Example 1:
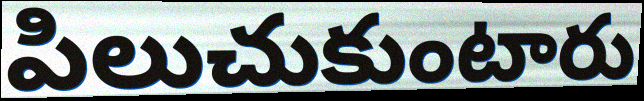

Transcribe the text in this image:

పిలుచుకుంటారు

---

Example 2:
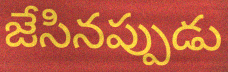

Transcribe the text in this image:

జేసినప్పుడు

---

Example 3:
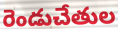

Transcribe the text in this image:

రెండుచేతుల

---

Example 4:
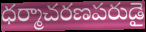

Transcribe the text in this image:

ధర్మాచరణపరుడై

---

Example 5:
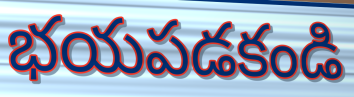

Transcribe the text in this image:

భయపడకండి